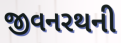
જીવનરથની